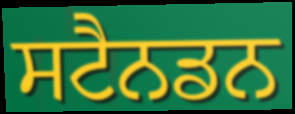
ਸਟੈਨਡਨ